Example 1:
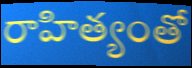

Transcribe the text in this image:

రాహిత్యంతో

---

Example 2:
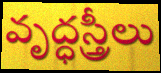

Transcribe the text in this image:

వృద్ధస్త్రీలు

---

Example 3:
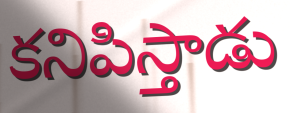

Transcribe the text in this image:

కనిపిస్తాడు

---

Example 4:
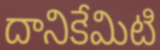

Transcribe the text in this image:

దానికేమిటి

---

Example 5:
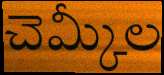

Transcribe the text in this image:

చెమ్కీల